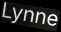
Lynne